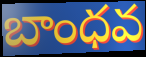
బాంధవ